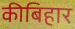
कीबिहार